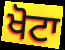
ਖੋਟਾ